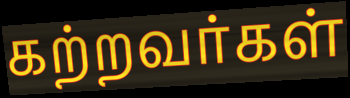
கற்றவர்கள்